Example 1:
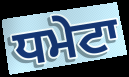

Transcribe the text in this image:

ਧਮੇਟਾ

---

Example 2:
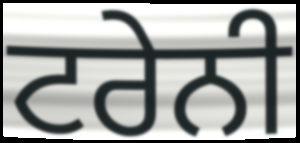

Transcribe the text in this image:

ਟਰੇਨੀ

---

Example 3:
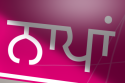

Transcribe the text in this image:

ਨਾਪਾਂ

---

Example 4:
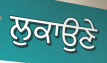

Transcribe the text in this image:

ਲੁਕਾਉਣੇ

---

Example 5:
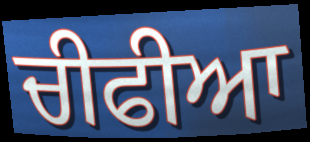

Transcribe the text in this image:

ਚੀਫੀਆ